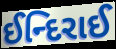
ઈન્દિરાઈ